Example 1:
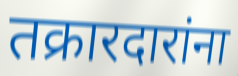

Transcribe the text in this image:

तक्रारदारांना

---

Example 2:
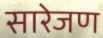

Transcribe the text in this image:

सारेजण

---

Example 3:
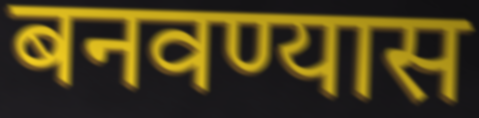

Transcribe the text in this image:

बनवण्यास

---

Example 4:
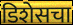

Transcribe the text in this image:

डिशेसचा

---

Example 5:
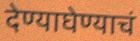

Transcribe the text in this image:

देण्याघेण्याचं